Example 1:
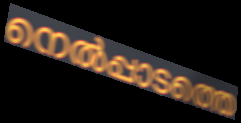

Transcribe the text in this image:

നെൽപ്പാടത്തെ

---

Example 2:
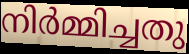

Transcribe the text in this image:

നിർമ്മിച്ചതു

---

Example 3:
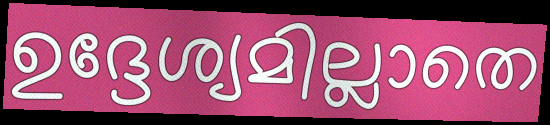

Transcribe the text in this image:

ഉദ്ദേശ്യമില്ലാതെ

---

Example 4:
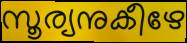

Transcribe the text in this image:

സൂര്യനുകീഴേ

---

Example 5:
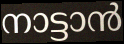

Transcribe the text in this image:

നാട്ടാൻ